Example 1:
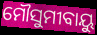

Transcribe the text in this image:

ମୌସୁମୀବାୟୁ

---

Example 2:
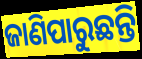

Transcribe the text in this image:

ଜାଣିପାରୁଛନ୍ତି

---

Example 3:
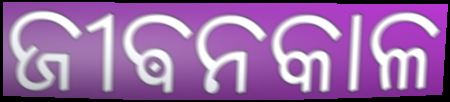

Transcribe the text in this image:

ଜୀଵନକାଳ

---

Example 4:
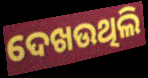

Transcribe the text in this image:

ଦେଖଉଥିଲି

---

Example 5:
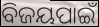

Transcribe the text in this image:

ବିଜୟପାଇଁ